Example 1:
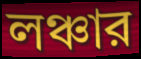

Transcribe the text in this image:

লঞ্চার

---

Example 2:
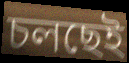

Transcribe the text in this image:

চলছেই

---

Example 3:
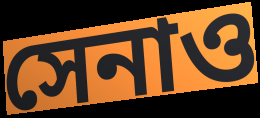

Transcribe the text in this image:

সেনাও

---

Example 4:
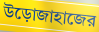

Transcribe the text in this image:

উড়োজাহাজের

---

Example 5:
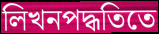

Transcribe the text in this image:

লিখনপদ্ধতিতে